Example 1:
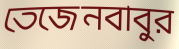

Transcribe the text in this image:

তেজেনবাবুর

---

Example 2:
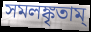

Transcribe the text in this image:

সমলঙ্কৃতাম্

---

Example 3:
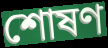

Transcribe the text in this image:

শোষণ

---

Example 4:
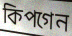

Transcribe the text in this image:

কিপগেন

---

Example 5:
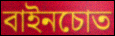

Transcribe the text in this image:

বাইনচোত